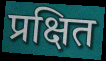
प्रक्षित